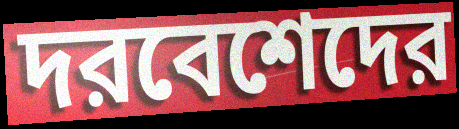
দরবেশেদের